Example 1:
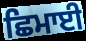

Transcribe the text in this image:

ਛਿਮਾਈ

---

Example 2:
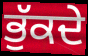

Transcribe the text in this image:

ਭੁੱਕਦੇ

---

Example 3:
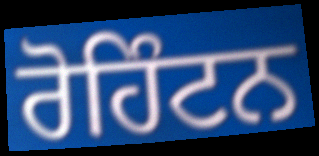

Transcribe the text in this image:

ਰੋਹਿੰਟਨ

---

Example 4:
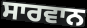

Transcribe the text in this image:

ਸਾਰਵਾਨ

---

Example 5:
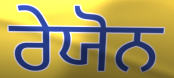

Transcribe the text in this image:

ਰੇਯੋਨ